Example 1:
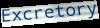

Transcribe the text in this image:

Excretory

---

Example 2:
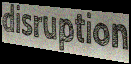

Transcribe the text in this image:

disruption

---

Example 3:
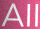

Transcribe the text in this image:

AII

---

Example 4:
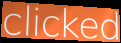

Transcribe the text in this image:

clicked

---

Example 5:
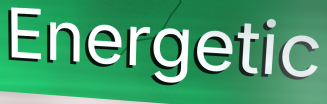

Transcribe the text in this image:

Energetic